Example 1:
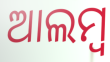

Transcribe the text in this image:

ଆଲମ୍ବ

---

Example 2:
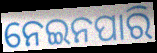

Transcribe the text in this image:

ନେଇନପାରି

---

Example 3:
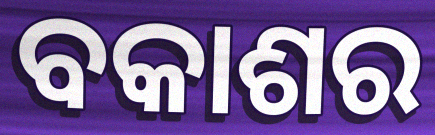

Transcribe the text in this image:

ବକାଶର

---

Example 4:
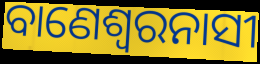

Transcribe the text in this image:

ବାଣେଶ୍ୱରନାସୀ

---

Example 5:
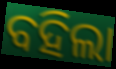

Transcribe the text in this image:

ବହିଲା